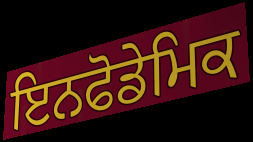
ਇਨਫੋਡੇਮਿਕ